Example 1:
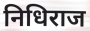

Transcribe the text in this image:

निधिराज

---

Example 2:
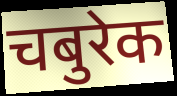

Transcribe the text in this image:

चबुरेक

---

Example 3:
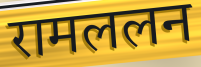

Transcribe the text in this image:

रामललन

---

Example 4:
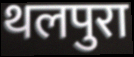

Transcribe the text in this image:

थलपुरा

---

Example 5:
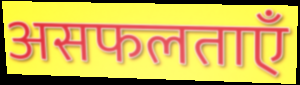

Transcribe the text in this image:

असफलताएँ